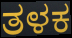
ತಳಕ